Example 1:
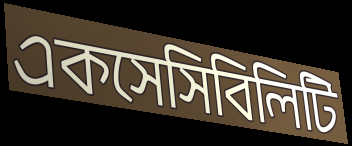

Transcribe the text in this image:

একসেসিবিলিটি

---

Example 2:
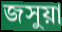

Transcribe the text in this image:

জসুয়া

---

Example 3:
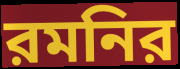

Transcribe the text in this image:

রমনির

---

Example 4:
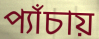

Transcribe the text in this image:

প্যাঁচায়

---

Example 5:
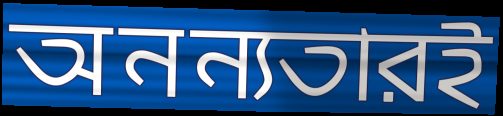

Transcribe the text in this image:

অনন্যতারই